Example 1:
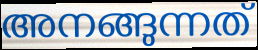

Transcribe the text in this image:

അനങ്ങുന്നത്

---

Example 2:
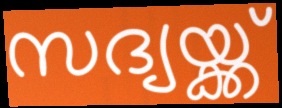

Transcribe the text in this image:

സദ്യയ്ക്ക്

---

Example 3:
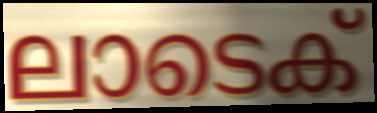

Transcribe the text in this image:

ലാടെക്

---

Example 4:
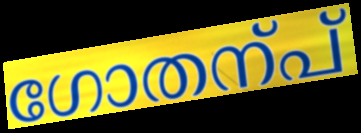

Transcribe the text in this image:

ഗോതന്പ്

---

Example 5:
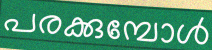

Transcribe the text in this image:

പരക്കുമ്പോൾ